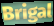
Brigal